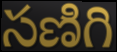
సణిగి